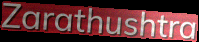
Zarathushtra